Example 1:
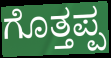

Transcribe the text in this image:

ಗೊತ್ತಪ್ಪ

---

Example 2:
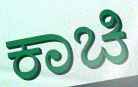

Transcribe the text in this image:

ಕಾಚಿ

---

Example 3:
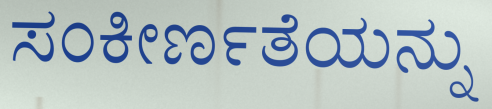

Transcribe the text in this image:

ಸಂಕೀರ್ಣತೆಯನ್ನು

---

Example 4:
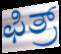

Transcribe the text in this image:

ಫಿತ್ರ್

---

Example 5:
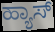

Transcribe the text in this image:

ಹ್ಯಾಸ್